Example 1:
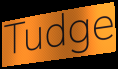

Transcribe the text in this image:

Tudge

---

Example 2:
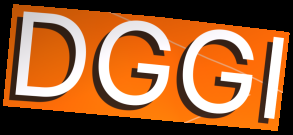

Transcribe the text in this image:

DGGI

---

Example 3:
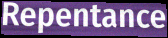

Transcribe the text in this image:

Repentance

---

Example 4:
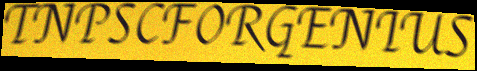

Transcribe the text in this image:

TNPSCFORGENIUS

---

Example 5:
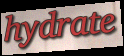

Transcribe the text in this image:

hydrate